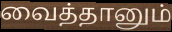
வைத்தானும்